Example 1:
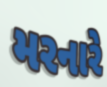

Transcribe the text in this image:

મરનારે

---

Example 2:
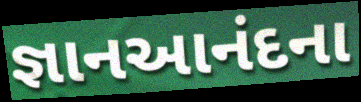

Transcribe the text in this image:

જ્ઞાનઆનંદના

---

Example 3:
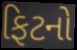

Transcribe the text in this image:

ફિટનો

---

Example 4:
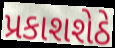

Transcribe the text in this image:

પ્રકાશશેઠે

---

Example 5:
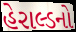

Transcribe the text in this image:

હેરાલ્ડનો